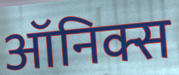
ऑनिक्स